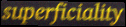
superficiality